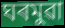
ঘৰমুৱা